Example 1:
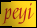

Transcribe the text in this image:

peyi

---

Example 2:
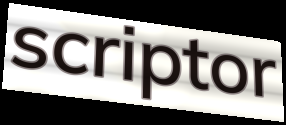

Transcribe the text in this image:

scriptor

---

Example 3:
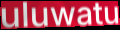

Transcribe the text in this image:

uluwatu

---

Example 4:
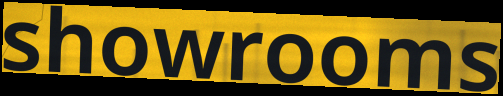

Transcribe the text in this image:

showrooms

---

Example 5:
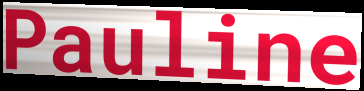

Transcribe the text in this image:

Pauline